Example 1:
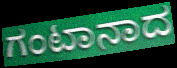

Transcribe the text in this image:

ಗಂಟಾನಾದ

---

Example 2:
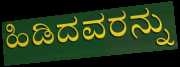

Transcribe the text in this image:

ಹಿಡಿದವರನ್ನು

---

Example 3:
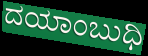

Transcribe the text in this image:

ದಯಾಂಬುಧಿ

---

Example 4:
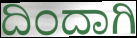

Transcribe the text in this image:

ದಿಂದಾಗಿ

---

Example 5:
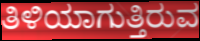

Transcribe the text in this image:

ತಿಳಿಯಾಗುತ್ತಿರುವ